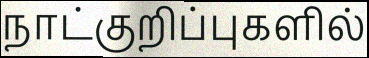
நாட்குறிப்புகளில்